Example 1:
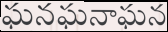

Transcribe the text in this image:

ఘనఘనాఘన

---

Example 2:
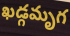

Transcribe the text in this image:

ఖడ్గమృగ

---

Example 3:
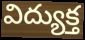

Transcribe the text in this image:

విద్యుక్త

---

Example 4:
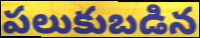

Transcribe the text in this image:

పలుకుబడిన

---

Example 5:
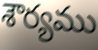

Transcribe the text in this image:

శౌర్యము